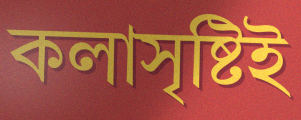
কলাসৃষ্টিই